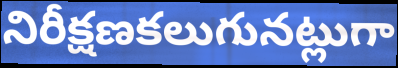
నిరీక్షణకలుగునట్లుగా